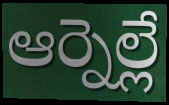
ఆర్నెల్లే